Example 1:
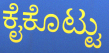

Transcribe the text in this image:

ಕೈಕೊಟ್ಟು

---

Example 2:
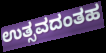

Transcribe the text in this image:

ಉತ್ಸವದಂತಹ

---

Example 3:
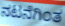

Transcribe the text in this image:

ನಟನೆಗಿಂತ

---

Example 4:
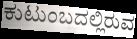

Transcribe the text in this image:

ಕುಟುಂಬದಲ್ಲಿರುವ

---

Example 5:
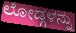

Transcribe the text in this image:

ಲೋಡ್ಗಳನ್ನು